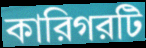
কারিগরটি